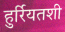
हुर्रियतशी